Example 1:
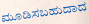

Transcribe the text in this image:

ಮೂಡಿಸಬಹುದಾದ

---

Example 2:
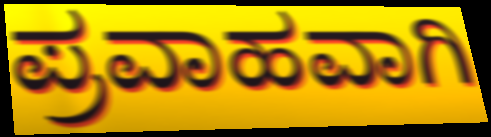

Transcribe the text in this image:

ಪ್ರವಾಹವಾಗಿ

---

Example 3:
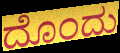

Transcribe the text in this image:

ದೊಂದು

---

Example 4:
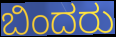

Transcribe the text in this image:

ಬಿಂದರು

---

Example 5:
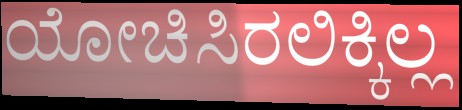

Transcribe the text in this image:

ಯೋಚಿಸಿರಲಿಕ್ಕಿಲ್ಲ